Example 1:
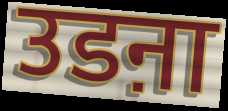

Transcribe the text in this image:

उडऩा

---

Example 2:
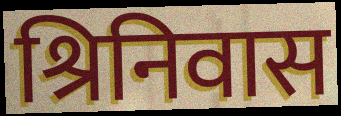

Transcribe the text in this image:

श्रिनिवास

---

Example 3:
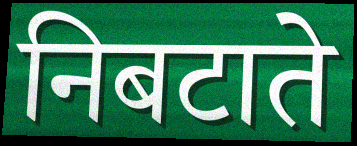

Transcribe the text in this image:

निबटाते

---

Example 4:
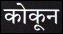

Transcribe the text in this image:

कोकून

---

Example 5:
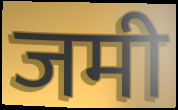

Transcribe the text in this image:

जमी